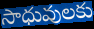
సాధువులకు